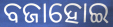
ବଜାହୋଇ